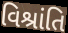
વિશ્રાંતિ